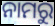
ନାମରୁ